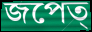
জপেত্